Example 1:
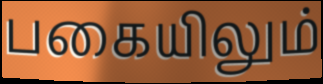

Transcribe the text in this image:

பகையிலும்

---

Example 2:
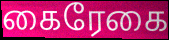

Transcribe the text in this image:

கைரேகை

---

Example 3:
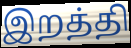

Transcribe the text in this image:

இறத்தி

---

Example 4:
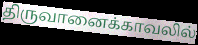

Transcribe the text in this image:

திருவானைக்காவலில்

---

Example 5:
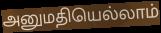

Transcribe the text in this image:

அனுமதியெல்லாம்